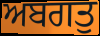
ਅਬਗਤੁ